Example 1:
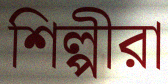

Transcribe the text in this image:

শিল্পীরা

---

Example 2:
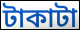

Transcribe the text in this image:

টাকাটা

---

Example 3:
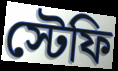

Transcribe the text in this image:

স্টেফি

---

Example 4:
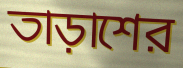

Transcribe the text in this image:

তাড়াশের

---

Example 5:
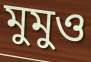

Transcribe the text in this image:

মুমুও